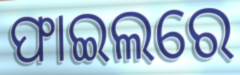
ଫାଇଲରେ